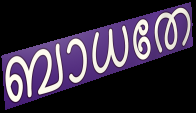
ബാധതേ